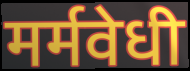
मर्मवेधी